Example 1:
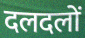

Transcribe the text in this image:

दलदलों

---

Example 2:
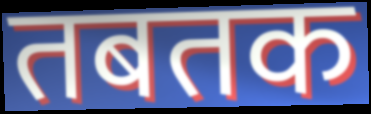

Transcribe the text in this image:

तबतक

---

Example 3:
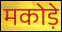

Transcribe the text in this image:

मकोड़े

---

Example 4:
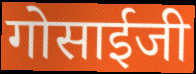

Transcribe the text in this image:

गोसाईजी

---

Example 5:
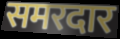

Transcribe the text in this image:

समरदार